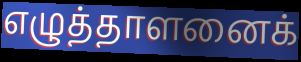
எழுத்தாளனைக்